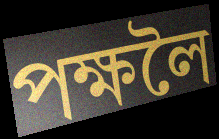
পক্ষলৈ